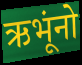
ऋभूंनो